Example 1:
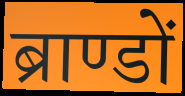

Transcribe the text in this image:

ब्राण्डों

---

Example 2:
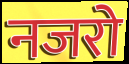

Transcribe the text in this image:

नजरो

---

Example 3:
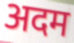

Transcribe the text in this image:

अदम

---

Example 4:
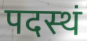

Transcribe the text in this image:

पदस्थं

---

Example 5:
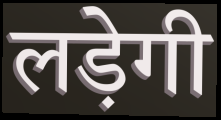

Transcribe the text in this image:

लड़ेगी